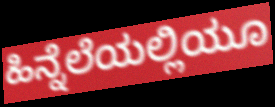
ಹಿನ್ನೆಲೆಯಲ್ಲಿಯೂ